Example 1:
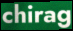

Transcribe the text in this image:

chirag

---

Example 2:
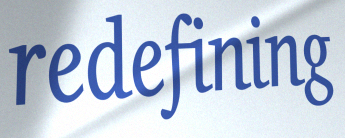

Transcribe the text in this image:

redefining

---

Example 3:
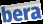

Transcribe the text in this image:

bera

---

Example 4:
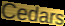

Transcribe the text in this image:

Cedars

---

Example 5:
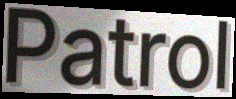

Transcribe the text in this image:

Patrol